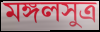
মঙ্গলসুত্র